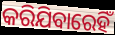
କରିଯିବାରେହିଁ